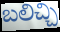
బలిచ్చి